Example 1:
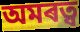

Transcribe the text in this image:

অমৰত্ব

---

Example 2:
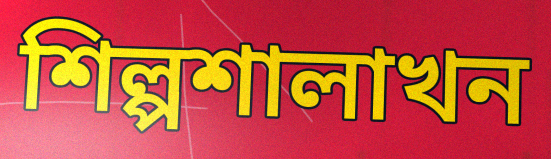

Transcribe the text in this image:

শিল্পশালাখন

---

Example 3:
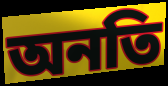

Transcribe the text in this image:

অনতি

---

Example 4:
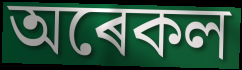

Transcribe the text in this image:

অৰেকল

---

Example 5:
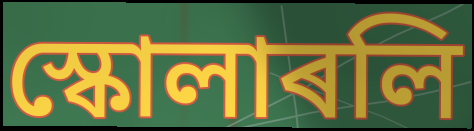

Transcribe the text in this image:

স্কোলাৰলি